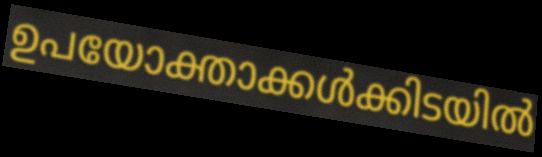
ഉപയോക്താക്കൾക്കിടയിൽ